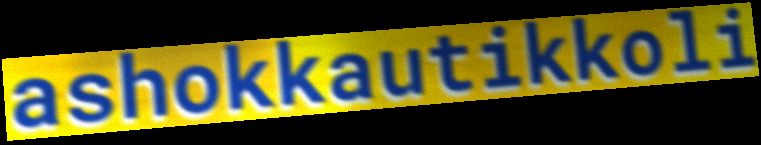
ashokkautikkoli